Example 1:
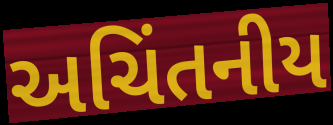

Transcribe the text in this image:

અચિંતનીય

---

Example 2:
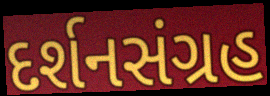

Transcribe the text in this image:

દર્શનસંગ્રહ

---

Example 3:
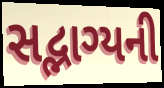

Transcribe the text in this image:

સદ્ભાગ્યની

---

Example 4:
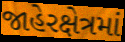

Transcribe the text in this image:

જાહેરક્ષેત્રમાં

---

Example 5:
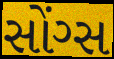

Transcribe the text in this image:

સોંગ્સ